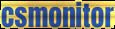
csmonitor